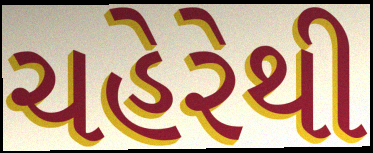
ચહેરેથી